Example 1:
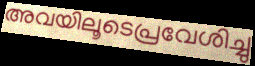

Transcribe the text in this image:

അവയിലൂടെപ്രവേശിച്ചു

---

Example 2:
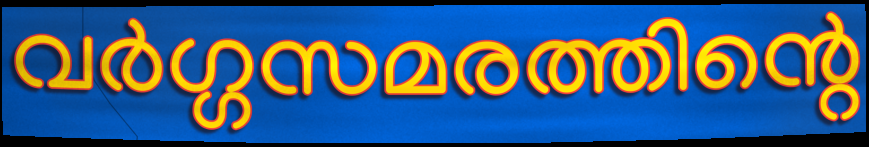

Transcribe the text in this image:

വർഗ്ഗസമരത്തിന്റെ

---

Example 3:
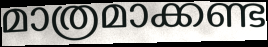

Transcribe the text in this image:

മാത്രമാക്കണ്ട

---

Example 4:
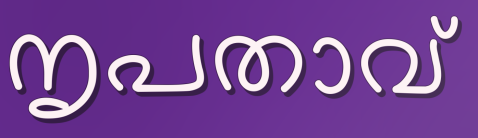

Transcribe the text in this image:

നൃപതാവ്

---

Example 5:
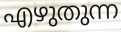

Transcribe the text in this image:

എഴുതുന്ന